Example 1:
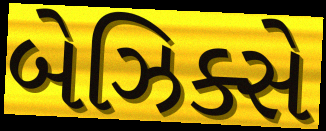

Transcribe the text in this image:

બેઝિક્સે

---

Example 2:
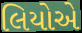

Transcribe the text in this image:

લિયોએ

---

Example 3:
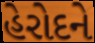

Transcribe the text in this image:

હેરોદને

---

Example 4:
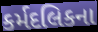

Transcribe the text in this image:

કર્મદલિકના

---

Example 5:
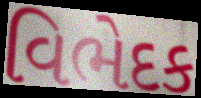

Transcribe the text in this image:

વિભેદક